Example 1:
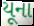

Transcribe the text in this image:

યૂના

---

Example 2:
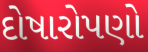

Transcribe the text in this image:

દોષારોપણો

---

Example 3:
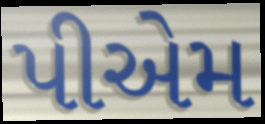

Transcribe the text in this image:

પીએમ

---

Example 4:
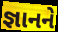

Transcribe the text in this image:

જ્ઞાનને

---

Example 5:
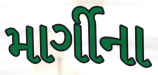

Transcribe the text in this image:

માર્ગીના